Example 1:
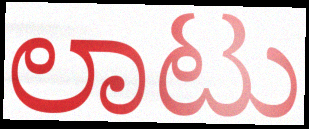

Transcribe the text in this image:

ಲಾಟು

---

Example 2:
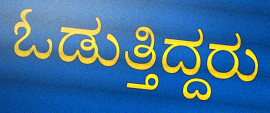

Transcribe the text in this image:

ಓಡುತ್ತಿದ್ದರು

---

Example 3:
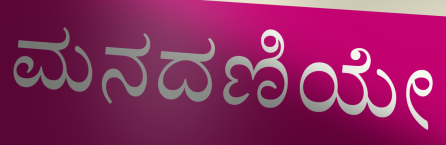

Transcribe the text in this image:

ಮನದಣಿಯೇ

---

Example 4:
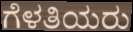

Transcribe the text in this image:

ಗೆಳತಿಯರು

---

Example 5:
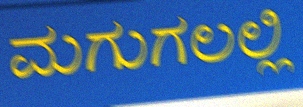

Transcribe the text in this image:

ಮಗುಗಲಲ್ಲಿ